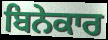
ਬਿਨੇਕਾਰ